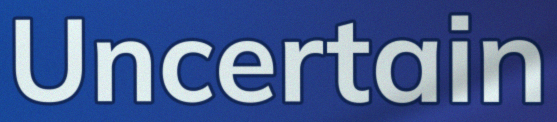
Uncertain